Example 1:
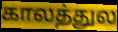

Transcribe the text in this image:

காலத்துல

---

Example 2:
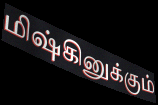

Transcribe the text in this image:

மிஷ்கினுக்கும்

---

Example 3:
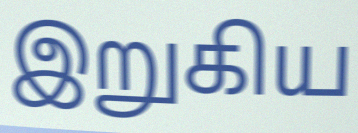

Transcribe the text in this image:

இறுகிய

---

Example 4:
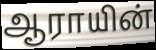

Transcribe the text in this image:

ஆராயின்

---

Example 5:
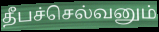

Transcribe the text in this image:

தீபச்செல்வனும்